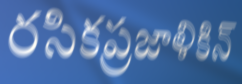
రసికప్రజాళికిన్